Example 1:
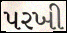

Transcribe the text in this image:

પરખી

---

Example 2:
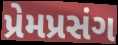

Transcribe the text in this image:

પ્રેમપ્રસંગ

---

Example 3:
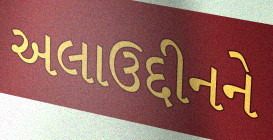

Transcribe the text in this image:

અલાઉદ્દીનને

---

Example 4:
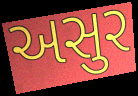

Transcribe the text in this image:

અસુર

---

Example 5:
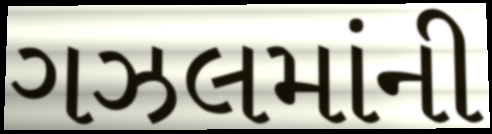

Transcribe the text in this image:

ગઝલમાંની